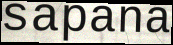
sapana